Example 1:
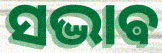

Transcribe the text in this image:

ସଦ୍ଭାଵ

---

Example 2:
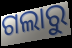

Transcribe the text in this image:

ଗଲାରୁ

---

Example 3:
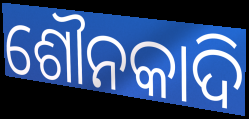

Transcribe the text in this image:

ଶୌନକାଦି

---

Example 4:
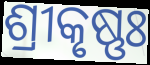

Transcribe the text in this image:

ଶ୍ରୀକୃଷ୍ଣଃ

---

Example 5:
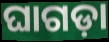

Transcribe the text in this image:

ଘାଗଡ଼ା